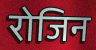
रोजिन